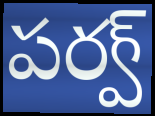
పర్వ్